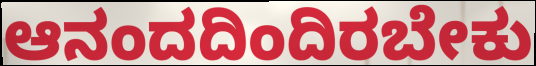
ಆನಂದದಿಂದಿರಬೇಕು